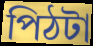
পিঠটা